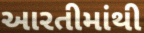
આરતીમાંથી